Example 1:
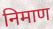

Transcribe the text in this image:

निमाण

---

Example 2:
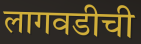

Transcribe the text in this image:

लागवडीची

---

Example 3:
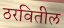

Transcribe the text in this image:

ठरवितील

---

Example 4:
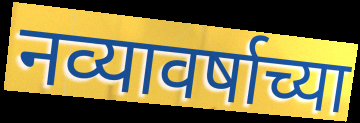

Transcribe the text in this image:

नव्यावर्षाच्या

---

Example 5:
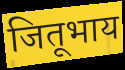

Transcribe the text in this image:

जितूभाय